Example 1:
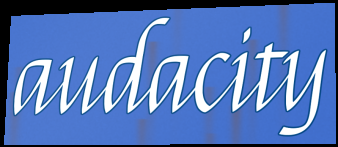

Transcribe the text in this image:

audacity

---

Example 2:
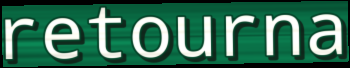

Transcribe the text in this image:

retourna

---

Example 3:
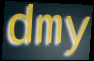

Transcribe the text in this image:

dmy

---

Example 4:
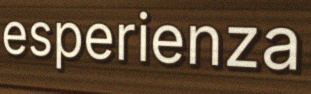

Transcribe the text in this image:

esperienza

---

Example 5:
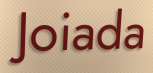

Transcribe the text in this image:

Joiada